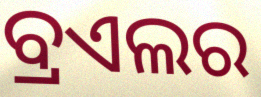
ବ୍ରଏଲର